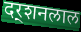
दर्शनलाल